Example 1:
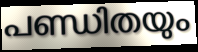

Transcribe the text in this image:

പണ്ഡിതയും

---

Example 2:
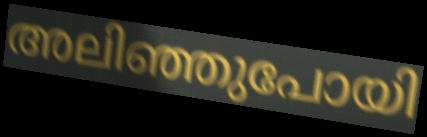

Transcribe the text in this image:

അലിഞ്ഞുപോയി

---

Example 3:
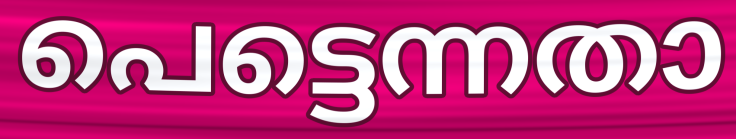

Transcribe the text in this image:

പെട്ടെന്നതാ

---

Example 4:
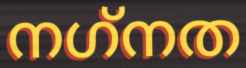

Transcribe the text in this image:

നഗ്‌നത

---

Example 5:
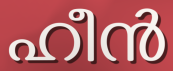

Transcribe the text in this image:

ഹീൻ